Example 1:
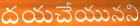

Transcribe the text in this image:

దయచేయునని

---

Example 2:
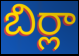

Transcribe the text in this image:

బిర్లా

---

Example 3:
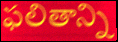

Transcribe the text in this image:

ఫలితాన్ని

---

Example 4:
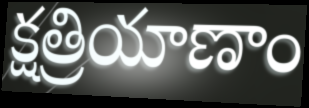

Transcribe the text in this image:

క్షత్రియాణాం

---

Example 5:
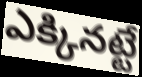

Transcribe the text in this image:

ఎక్కినట్టే